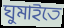
ঘুমাইতে